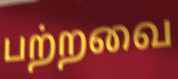
பற்றவை